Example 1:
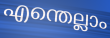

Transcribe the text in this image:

എന്തെല്ലാം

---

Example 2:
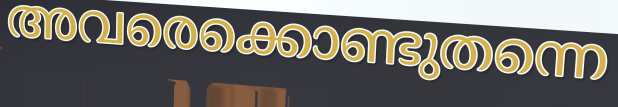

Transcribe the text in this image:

അവരെക്കൊണ്ടുതന്നെ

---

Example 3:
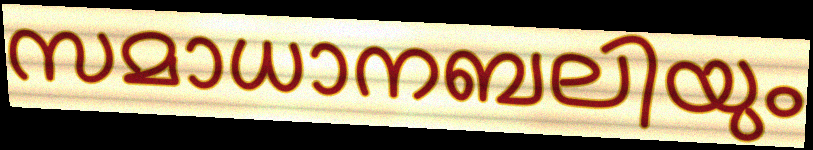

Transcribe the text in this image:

സമാധാനബലിയും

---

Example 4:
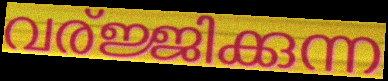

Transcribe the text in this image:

വര്ജ്ജിക്കുന്ന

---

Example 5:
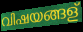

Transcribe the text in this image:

വിഷയങ്ങള്